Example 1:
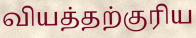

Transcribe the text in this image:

வியத்தற்குரிய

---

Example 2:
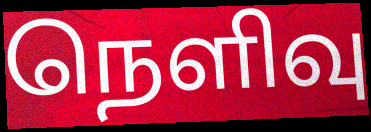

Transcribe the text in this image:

நெளிவு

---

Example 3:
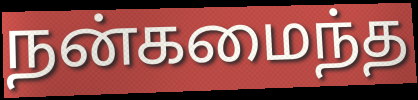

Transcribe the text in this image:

நன்கமைந்த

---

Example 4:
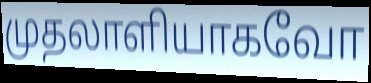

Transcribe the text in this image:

முதலாளியாகவோ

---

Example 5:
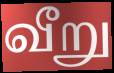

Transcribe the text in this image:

வீறு